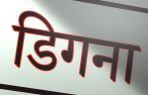
डिगना